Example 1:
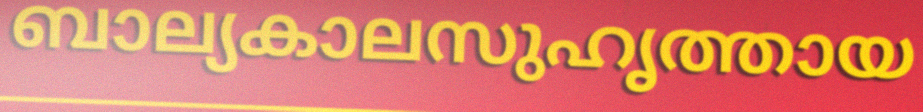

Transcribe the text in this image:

ബാല്യകാലസുഹൃത്തായ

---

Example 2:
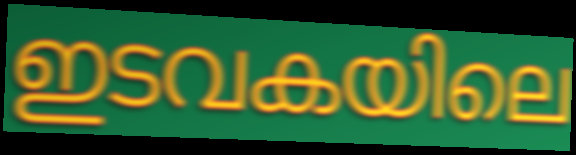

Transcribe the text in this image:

ഇടവകയിലെ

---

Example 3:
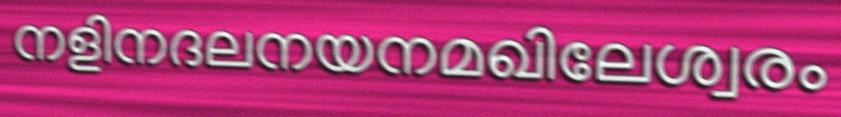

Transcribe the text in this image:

നളിനദലനയനമഖിലേശ്വരം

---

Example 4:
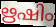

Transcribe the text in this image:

ഋഷിം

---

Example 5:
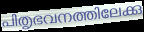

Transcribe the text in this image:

പിതൃഭവനത്തിലേക്കു